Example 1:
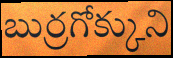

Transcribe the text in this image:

బుర్రగోక్కుని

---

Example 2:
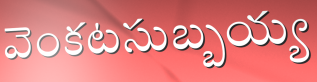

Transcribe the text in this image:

వెంకటసుబ్బయ్య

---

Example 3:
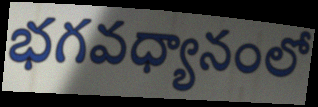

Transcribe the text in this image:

భగవధ్యానంలో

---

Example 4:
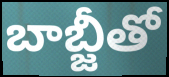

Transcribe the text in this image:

బాబ్జీతో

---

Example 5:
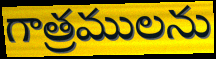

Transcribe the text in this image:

గాత్రములను